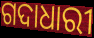
ଗଦାଧାରୀ